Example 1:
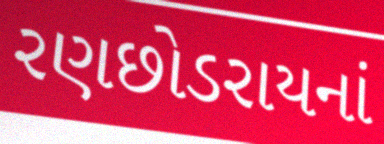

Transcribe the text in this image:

રણછોડરાયનાં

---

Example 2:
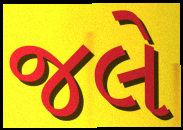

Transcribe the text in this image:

જલે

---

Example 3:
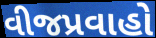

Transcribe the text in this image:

વીજપ્રવાહો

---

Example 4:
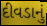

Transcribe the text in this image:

દીવડાનું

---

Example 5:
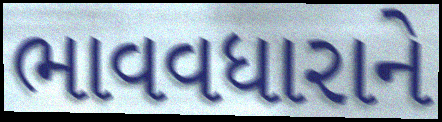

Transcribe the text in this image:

ભાવવધારાને